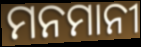
ମନମାନୀ